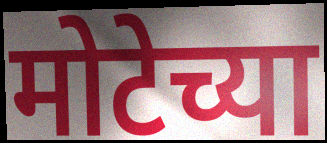
मोटेच्या